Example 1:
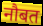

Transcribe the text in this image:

नौबत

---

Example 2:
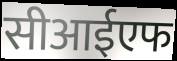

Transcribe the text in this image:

सीआईएफ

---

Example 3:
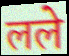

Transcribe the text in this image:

लले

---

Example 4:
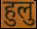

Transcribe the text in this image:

हुलु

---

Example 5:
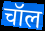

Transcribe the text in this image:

चॉल